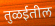
तुळईतील